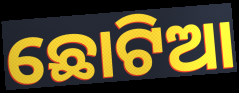
ଛୋଟିଆ